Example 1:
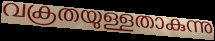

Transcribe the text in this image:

വക്രതയുള്ളതാകുന്നു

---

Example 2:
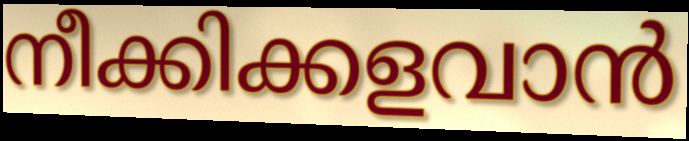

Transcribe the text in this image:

നീക്കിക്കളവാൻ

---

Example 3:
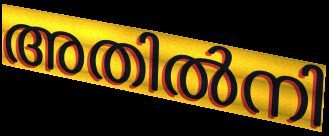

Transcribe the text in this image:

അതിൽനി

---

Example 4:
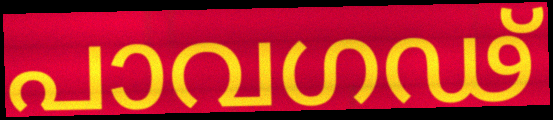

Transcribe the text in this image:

പാവഗഢ്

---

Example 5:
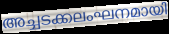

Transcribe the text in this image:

അച്ചടക്കലംഘനമായി